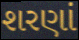
શરણાં